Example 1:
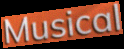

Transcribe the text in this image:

Musical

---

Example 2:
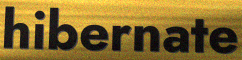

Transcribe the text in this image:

hibernate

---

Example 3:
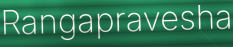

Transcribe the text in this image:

Rangapravesha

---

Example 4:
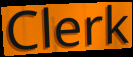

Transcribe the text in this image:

Clerk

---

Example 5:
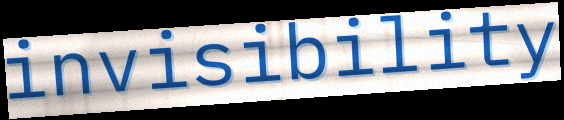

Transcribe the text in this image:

invisibility